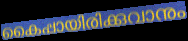
കൈപ്പായിരിക്കുവാനും